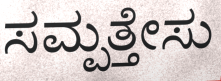
ಸಮ್ಪತ್ತೇಸು